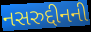
નસરુદ્દીનની